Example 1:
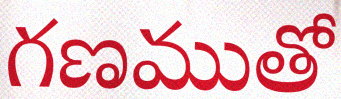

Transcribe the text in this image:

గణముతో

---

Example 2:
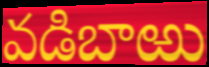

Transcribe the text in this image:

వడిబాఱు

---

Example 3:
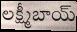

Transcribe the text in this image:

లక్ష్మీబాయ్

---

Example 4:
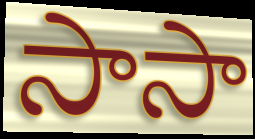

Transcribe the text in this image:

సాసా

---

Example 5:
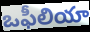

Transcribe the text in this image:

ఒఫీలియా